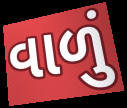
વાળું